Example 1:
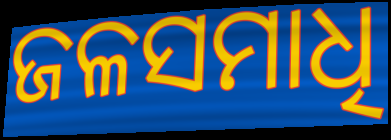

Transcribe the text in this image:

ଜଳସମାଧି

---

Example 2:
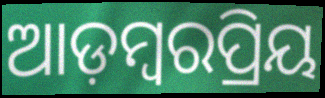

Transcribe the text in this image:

ଆଡ଼ମ୍ବରପ୍ରିୟ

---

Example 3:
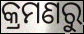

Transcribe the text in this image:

କ୍ରମଣରୁ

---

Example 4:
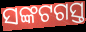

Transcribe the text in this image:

ସଙ୍କଟଗସ୍ତ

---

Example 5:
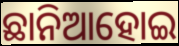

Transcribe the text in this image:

ଛାନିଆହୋଇ